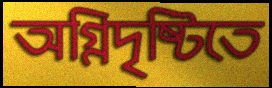
অগ্নিদৃষ্টিতে